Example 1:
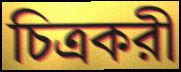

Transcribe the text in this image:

চিত্রকরী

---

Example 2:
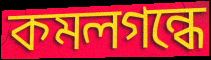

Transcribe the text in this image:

কমলগন্ধে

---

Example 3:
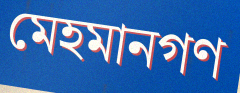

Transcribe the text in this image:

মেহমানগণ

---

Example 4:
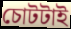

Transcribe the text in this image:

চোটটাই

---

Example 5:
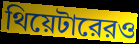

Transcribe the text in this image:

থিয়েটারেরও